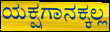
ಯಕ್ಷಗಾನಕ್ಕಲ್ಲ